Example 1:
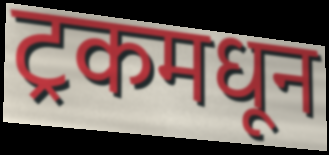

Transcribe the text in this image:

ट्रकमधून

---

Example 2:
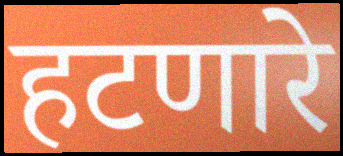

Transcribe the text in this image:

हटणारे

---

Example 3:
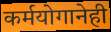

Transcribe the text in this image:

कर्मयोगानेही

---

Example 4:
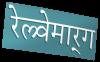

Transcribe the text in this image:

रेल्वेमार्ग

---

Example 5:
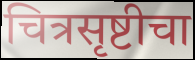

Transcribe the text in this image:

चित्रसृष्टीचा